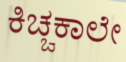
ಕಿಚ್ಚಕಾಲೇ